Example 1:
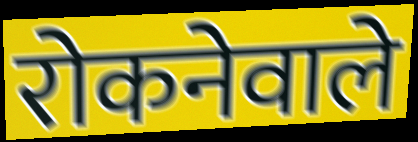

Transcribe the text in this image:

रोकनेवाले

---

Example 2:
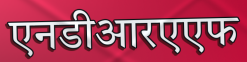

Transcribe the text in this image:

एनडीआरएएफ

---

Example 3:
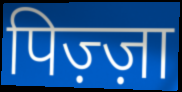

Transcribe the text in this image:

पिज़्ज़ा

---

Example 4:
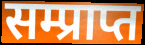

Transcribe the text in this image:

सम्प्राप्त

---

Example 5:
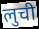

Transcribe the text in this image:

लुची